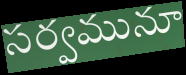
సర్వమునూ